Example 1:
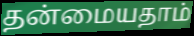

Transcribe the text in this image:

தன்மையதாம்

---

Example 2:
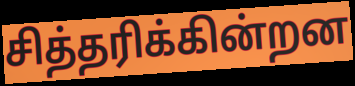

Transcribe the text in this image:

சித்தரிக்கின்றன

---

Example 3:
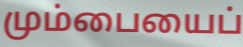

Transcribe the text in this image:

மும்பையைப்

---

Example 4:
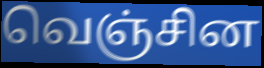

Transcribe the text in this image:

வெஞ்சின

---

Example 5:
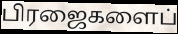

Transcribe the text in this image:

பிரஜைகளைப்